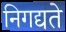
निगद्यते